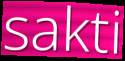
sakti